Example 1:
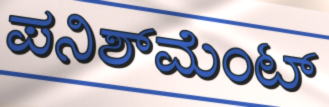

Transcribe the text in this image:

ಪನಿಶ್‌ಮೆಂಟ್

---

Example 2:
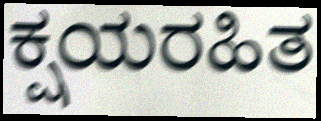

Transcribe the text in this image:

ಕ್ಷಯರಹಿತ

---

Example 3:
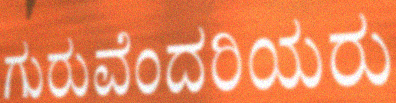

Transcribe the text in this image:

ಗುರುವೆಂದರಿಯರು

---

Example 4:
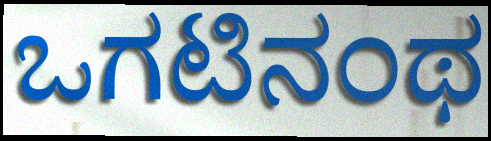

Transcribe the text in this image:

ಒಗಟಿನಂಥ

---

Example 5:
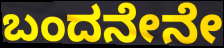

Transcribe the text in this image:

ಬಂದನೇನೇ